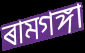
ৰামগঙ্গা